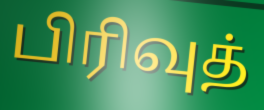
பிரிவுத்